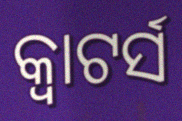
କ୍ଵାଟର୍ସ